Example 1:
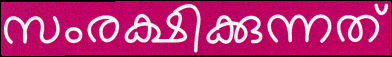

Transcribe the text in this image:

സംരക്ഷിക്കുന്നത്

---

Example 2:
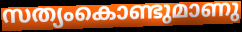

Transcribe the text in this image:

സത്യംകൊണ്ടുമാണു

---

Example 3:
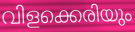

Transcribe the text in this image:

വിളക്കെരിയും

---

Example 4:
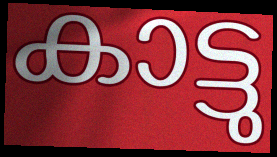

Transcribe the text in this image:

കാട്ടു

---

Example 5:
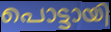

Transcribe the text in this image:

പൊട്ടായി